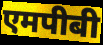
एमपीबी